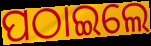
ପଠାଇଲେ